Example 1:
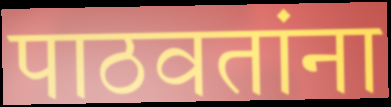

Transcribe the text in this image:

पाठवतांना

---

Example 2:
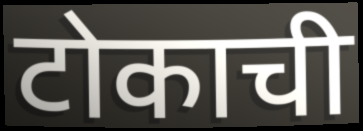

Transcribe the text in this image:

टोकाची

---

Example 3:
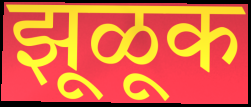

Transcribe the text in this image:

झूळूक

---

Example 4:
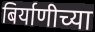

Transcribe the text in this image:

बिर्याणीच्या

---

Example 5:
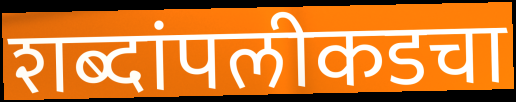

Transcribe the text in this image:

शब्दांपलीकडचा